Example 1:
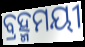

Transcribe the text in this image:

ବ୍ରହ୍ମମୟୀ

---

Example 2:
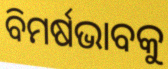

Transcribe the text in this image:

ବିମର୍ଷଭାବକୁ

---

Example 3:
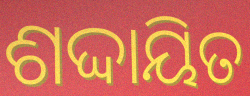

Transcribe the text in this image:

ଶଦ୍ଦାୟିତ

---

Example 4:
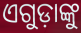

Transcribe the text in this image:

ଏଗୁଡ଼ାଙ୍କୁ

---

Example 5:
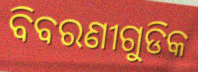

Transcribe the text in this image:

ବିବରଣୀଗୁଡିକ